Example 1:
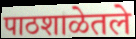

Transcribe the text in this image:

पाठशाळेतले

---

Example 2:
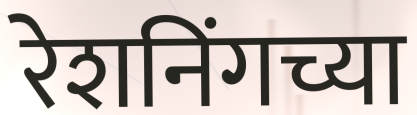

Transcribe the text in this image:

रेशनिंगच्या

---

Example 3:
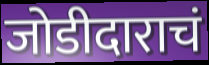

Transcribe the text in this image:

जोडीदाराचं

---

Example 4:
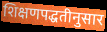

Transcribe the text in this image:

शिक्षणपद्धतीनुसार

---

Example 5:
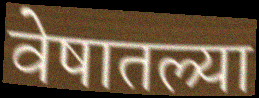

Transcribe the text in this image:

वेषातल्या